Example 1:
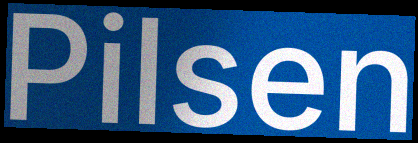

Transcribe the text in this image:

Pilsen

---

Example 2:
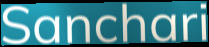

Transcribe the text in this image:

Sanchari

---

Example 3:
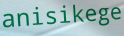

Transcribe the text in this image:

anisikege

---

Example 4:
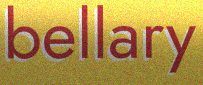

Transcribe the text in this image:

bellary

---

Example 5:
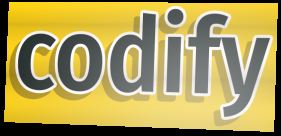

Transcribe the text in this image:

codify